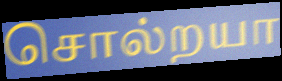
சொல்றயா